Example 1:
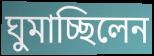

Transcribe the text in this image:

ঘুমাচ্ছিলেন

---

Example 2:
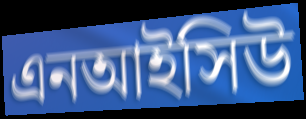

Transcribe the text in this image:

এনআইসিউ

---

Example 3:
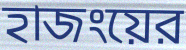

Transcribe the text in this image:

হাজংয়ের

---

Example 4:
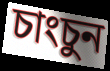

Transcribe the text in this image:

চাংচুন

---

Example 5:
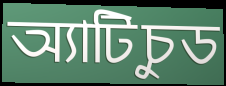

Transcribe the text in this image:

অ্যাটিচুড